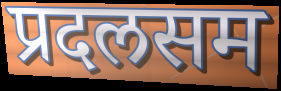
प्रदलसम